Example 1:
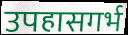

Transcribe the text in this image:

उपहासगर्भ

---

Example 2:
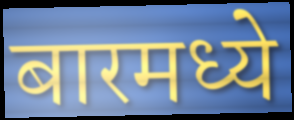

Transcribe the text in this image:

बारमध्ये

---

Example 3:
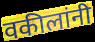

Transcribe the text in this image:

वकीलांनी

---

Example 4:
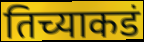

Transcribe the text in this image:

तिच्याकडं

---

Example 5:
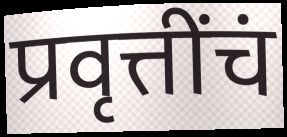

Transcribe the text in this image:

प्रवृत्तींचं